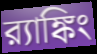
র‍্যাঙ্কিং